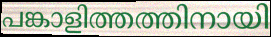
പങ്കാളിത്തത്തിനായി